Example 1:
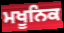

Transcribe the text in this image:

ਮਖੂਨਿਕ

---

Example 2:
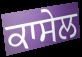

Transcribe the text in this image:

ਕਾਸੇਲ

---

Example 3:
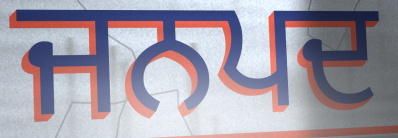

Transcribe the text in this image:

ਜਨਪਦ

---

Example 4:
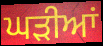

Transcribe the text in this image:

ਘੜੀਆਂ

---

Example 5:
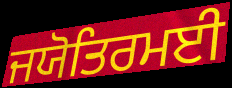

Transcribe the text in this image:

ਜਯੋਤਿਰਮਈ